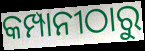
କମ୍ପାନୀଠାରୁ